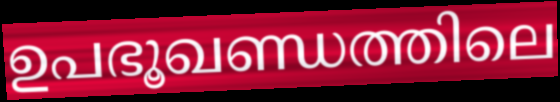
ഉപഭൂഖണ്ഡത്തിലെ